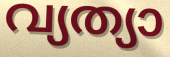
വ്യത്യാ